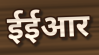
ईईआर